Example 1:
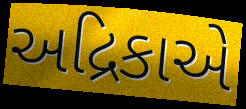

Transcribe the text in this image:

અદ્રિકાએ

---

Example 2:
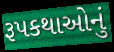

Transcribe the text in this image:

રૂપકથાઓનું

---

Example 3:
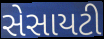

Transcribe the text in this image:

સેસાયટી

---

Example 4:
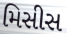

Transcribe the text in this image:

મિસીસ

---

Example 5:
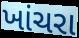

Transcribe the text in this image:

ખાંચરા